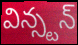
విన్స్టన్